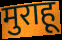
मुराहू